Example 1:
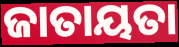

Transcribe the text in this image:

ଜାତାୟତା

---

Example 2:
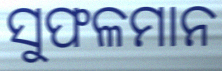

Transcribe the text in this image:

ସୁଫଳମାନ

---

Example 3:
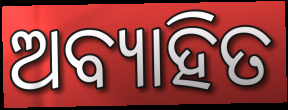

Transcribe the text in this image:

ଅବ୍ୟାହିତ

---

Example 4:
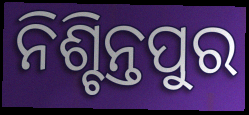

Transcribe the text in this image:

ନିଶ୍ଚିନ୍ତପୁର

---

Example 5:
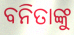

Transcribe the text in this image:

ବନିତାଙ୍କୁ